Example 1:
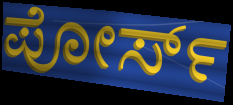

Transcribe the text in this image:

ಪೋರ್ಸ್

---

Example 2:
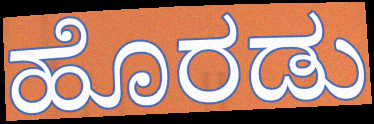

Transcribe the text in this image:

ಹೊರಡು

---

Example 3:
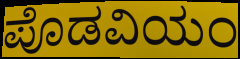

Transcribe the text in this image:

ಪೊಡವಿಯಂ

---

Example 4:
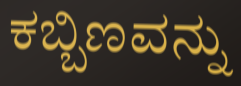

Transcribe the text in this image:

ಕಬ್ಬಿಣವನ್ನು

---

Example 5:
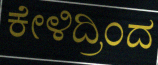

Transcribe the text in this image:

ಕೇಳಿದ್ರಿಂದ